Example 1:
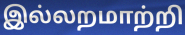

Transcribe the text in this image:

இல்லறமாற்றி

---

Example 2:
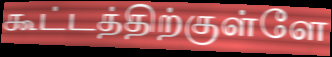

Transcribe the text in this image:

கூட்டத்திற்குள்ளே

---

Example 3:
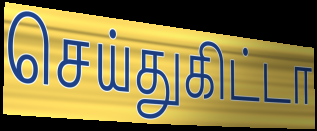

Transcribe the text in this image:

செய்துகிட்டா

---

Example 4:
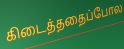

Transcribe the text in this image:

கிடைத்ததைப்போல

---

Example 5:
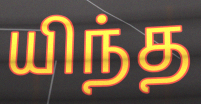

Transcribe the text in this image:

யிந்த